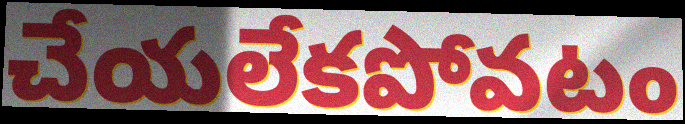
చేయలేకపోవటం